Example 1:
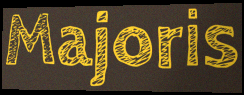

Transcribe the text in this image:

Majoris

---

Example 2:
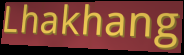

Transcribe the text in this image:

Lhakhang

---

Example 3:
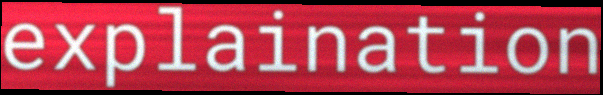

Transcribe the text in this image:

explaination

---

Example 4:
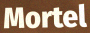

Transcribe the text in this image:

Mortel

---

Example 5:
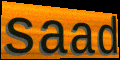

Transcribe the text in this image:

saad